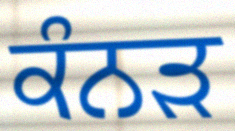
ਕੰਨਡ਼